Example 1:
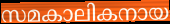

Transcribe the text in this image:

സമകാലികനായ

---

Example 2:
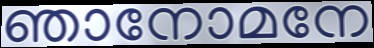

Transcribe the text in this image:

ഞാനോമനേ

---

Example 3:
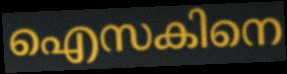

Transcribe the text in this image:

ഐസകിനെ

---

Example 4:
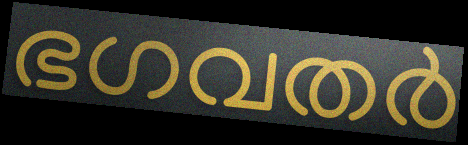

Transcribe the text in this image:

ഭഗവതർ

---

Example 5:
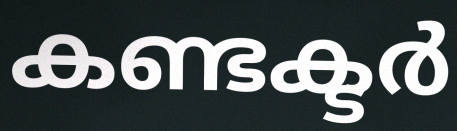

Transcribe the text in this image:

കണ്ടക്ടർ